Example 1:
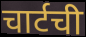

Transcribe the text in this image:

चार्टची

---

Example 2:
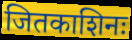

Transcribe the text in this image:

जितकाशिनः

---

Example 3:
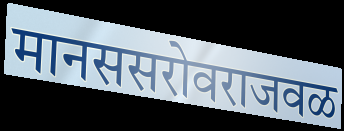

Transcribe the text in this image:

मानससरोवराजवळ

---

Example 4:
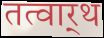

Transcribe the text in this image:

तत्वार्थ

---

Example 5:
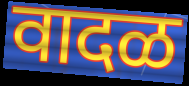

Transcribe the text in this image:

वादळ